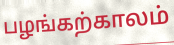
பழங்கற்காலம்